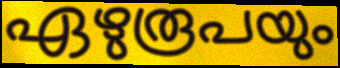
ഏഴുരൂപയും